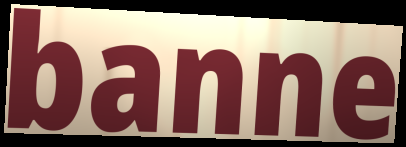
banne